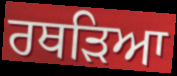
ਰਥੜਿਆ